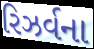
રિઝર્વના